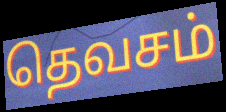
தெவசம்